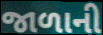
જાળાની